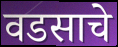
वडसाचे